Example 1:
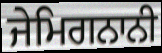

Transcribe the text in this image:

ਜੇਮਿਗਨਾਨੀ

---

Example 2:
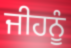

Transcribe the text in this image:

ਜੀਹਨੂੰ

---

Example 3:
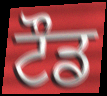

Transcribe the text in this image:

ਟੌਡ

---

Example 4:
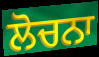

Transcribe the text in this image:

ਲੋਚਨਾ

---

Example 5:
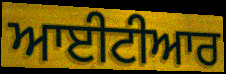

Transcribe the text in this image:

ਆਈਟੀਆਰ